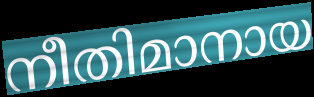
നീതിമാനായ